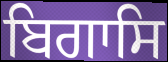
ਬਿਗਾਸਿ